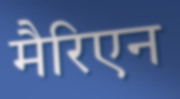
मैरिएन